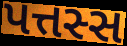
પત્તસ્સ